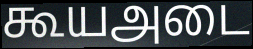
கூயஅடை